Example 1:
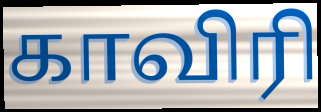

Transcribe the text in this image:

காவிரி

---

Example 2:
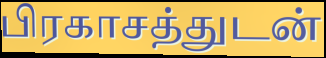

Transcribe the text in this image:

பிரகாசத்துடன்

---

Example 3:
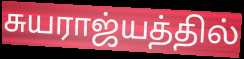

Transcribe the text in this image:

சுயராஜ்யத்தில்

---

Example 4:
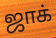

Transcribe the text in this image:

ஜாக்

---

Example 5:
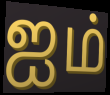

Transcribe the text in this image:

ஐம்